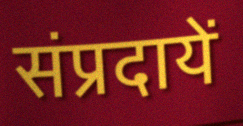
संप्रदायें